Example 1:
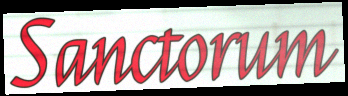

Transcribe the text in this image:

Sanctorum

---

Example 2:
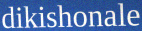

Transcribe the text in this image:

dikishonale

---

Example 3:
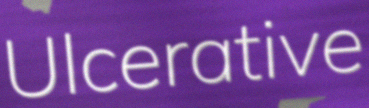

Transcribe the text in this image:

Ulcerative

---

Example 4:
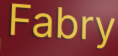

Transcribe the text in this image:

Fabry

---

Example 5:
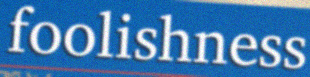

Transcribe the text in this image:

foolishness